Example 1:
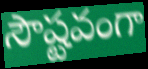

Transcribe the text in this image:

సౌష్టవంగా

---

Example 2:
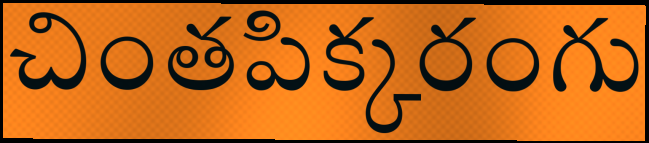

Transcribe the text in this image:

చింతపిక్కరంగు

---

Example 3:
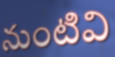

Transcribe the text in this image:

నుంటివి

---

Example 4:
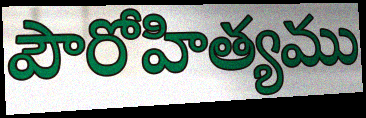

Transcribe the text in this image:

పౌరోహిత్యము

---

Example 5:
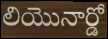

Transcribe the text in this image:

లియొనార్డో